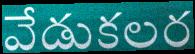
వేడుకలర